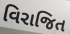
વિરાજિત